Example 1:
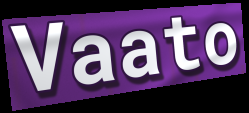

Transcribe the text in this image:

Vaato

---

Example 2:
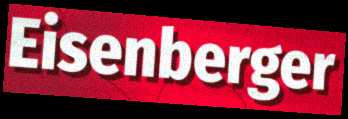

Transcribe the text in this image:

Eisenberger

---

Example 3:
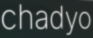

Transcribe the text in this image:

chadyo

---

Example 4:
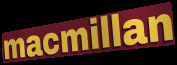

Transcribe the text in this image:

macmillan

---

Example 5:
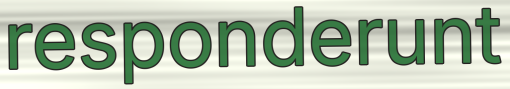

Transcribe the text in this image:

responderunt